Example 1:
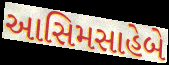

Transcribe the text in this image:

આસિમસાહેબે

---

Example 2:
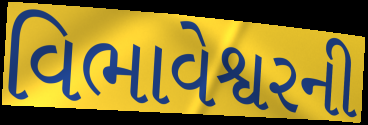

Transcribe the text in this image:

વિભાવેશ્વરની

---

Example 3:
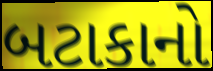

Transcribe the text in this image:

બટાકાનો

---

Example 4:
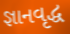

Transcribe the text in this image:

જ્ઞાનવૃદ્ધ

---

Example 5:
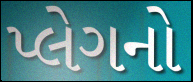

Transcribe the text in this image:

પ્લેગનો